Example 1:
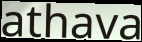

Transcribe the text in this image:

athava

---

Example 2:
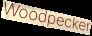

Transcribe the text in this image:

Woodpecker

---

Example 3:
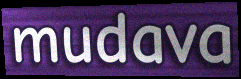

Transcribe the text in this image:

mudava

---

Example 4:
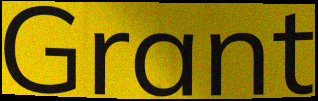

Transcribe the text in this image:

Grant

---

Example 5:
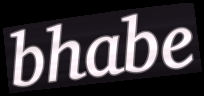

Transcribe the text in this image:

bhabe